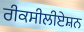
ਰੀਕਸੀਲੀਏਸ਼ਨ